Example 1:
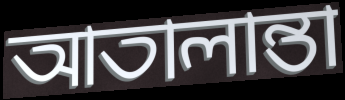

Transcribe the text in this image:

আতালান্তা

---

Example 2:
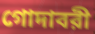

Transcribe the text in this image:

গোদাবরী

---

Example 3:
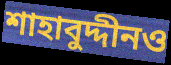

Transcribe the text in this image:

শাহাবুদ্দীনও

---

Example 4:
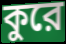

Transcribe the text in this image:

কুরে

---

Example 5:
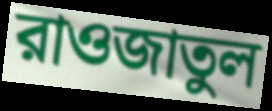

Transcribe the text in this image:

রাওজাতুল